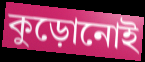
কুড়োনোই